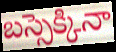
బస్సెక్కినా